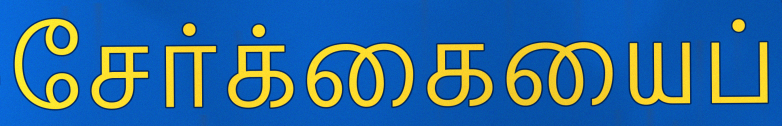
சேர்க்கையைப்